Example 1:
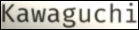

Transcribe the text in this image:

Kawaguchi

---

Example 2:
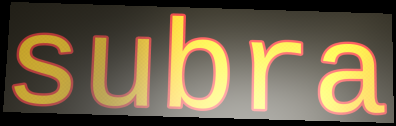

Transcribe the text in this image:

subra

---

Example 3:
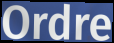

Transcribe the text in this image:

Ordre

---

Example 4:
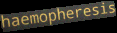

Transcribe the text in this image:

haemopheresis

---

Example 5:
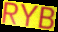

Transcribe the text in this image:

RYB